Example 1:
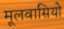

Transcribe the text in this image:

मूलवासियो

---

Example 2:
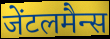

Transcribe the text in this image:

जेंटलमैन्स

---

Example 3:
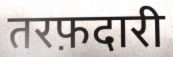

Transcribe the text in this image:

तरफ़दारी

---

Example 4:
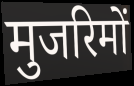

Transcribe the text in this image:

मुजरिमों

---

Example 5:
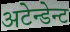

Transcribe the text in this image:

अटेन्डेन्ट